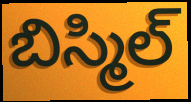
బిస్మిల్